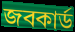
জবকার্ড